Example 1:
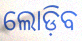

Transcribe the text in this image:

ଲୋଡ଼ିବ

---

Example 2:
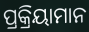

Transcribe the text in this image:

ପ୍ରକ୍ରିୟାମାନ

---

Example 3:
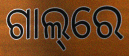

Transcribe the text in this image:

ଗାଲ୍‌ରେ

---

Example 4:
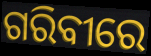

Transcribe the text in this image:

ଗରିବୀରେ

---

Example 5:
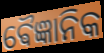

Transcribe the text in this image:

ଵୈଜ୍ଞାନିକ